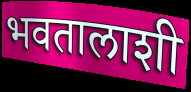
भवतालाशी